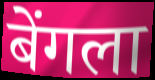
बेंगला